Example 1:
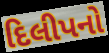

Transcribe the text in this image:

દિલીપનો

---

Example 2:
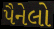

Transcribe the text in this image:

પૈનેલો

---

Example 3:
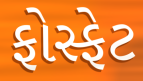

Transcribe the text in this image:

ફોસ્ફેટ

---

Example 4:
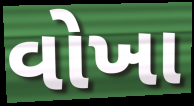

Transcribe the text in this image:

વોખા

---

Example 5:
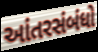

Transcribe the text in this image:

આંતરસંબંધો